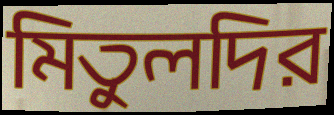
মিতুলদির